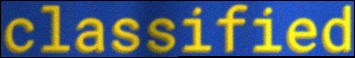
classified